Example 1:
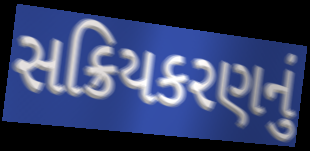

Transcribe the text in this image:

સક્રિયકરણનું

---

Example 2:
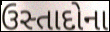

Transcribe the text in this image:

ઉસ્તાદોના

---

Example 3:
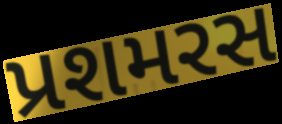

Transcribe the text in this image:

પ્રશમરસ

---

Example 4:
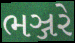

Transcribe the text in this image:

ભઞ્જરે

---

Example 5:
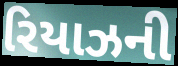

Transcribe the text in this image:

રિયાઝની